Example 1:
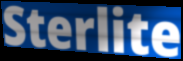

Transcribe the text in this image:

Sterlite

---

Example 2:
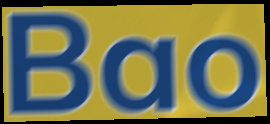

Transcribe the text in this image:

Bao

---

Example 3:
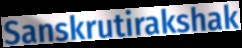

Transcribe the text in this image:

Sanskrutirakshak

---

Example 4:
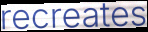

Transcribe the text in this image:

recreates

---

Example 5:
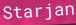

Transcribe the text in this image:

Starjan